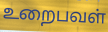
உறைபவள்